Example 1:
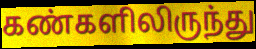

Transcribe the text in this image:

கண்களிலிருந்து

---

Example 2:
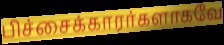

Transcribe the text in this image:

பிச்சைக்காரர்களாகவே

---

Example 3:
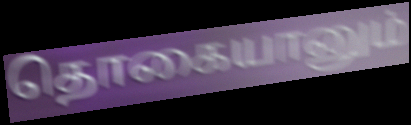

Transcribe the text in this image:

தொகையானும்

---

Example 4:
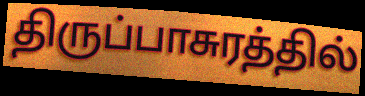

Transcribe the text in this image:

திருப்பாசுரத்தில்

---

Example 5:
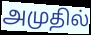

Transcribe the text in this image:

அமுதில்